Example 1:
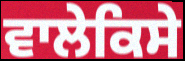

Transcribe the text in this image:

ਵਾਲੇਕਿਸੇ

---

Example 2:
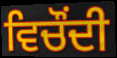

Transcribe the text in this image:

ਵਿਚੌਂਦੀ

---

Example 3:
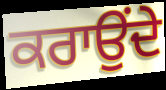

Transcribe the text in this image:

ਕਰਾਉੰਦੇ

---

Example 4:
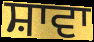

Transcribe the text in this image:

ਸ਼ਾਵਾ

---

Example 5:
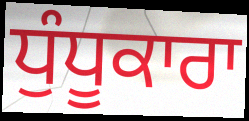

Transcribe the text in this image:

ਧੁੰਧੂਕਾਰਾ